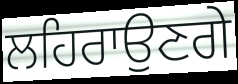
ਲਹਿਰਾਉਣਗੇ